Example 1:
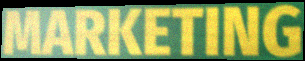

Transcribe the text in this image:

MARKETING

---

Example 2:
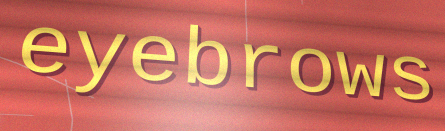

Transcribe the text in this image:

eyebrows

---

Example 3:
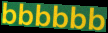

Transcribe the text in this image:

bbbbbb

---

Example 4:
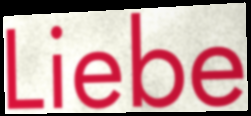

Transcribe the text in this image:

Liebe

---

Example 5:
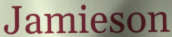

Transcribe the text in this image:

Jamieson